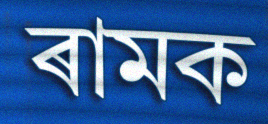
ৰামক